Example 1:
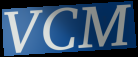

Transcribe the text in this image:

VCM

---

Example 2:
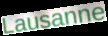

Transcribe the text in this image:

Lausanne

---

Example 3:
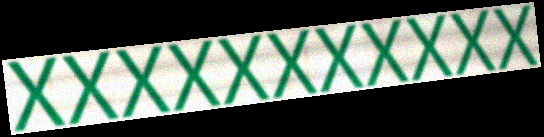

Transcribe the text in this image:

XXXXXXXXXXX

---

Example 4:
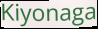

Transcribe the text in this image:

Kiyonaga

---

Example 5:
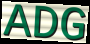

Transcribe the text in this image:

ADG